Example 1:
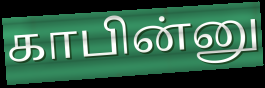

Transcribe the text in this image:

காபின்னு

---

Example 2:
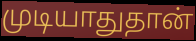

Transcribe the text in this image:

முடியாதுதான்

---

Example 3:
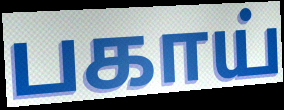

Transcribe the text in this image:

பகாய்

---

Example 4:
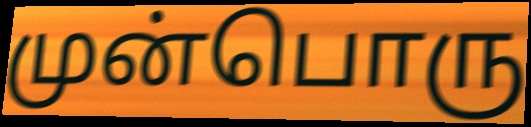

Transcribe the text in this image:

முன்பொரு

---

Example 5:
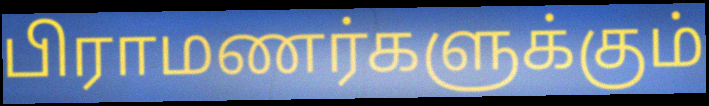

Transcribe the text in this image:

பிராமணர்களுக்கும்